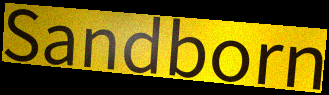
Sandborn